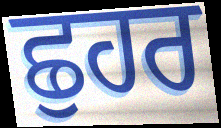
ਛੁਹਰ